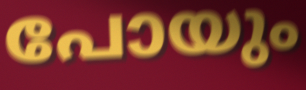
പോയും